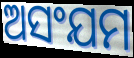
ଅସଂଯମ